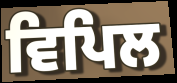
ਵਿਪਿਲ